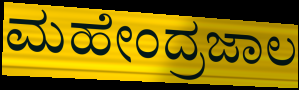
ಮಹೇಂದ್ರಜಾಲ